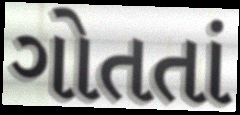
ગોતતાં